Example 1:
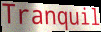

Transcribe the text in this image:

Tranquil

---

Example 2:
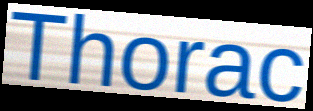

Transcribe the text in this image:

Thorac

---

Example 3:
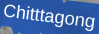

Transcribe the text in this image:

Chitttagong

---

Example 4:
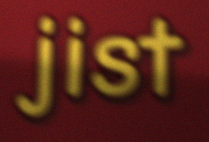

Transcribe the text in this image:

jist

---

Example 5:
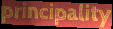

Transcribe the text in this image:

principality